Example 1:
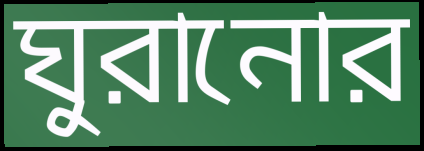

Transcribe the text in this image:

ঘুরানোর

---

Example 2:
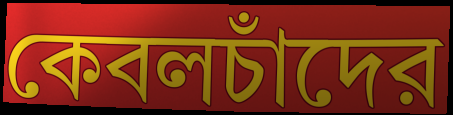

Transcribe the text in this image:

কেবলচাঁদের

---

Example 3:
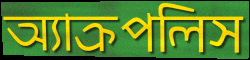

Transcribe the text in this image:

অ্যাক্রপলিস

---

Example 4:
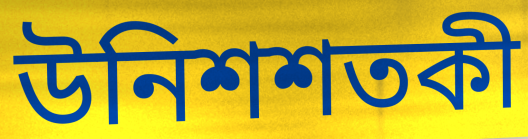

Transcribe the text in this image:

উনিশশতকী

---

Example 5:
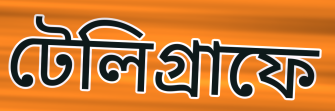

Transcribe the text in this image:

টেলিগ্রাফে